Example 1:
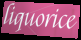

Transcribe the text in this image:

liquorice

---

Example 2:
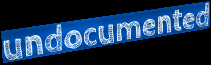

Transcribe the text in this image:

undocumented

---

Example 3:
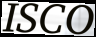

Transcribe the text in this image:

ISCO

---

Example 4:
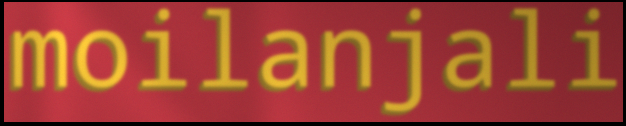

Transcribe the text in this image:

moilanjali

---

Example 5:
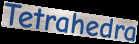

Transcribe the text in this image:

Tetrahedra